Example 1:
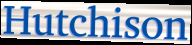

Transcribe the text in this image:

Hutchison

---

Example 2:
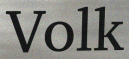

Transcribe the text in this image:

Volk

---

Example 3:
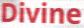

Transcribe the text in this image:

Divine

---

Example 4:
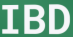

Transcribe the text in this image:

IBD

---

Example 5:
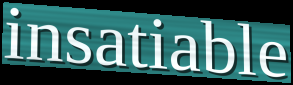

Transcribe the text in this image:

insatiable